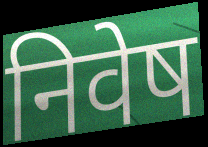
निवेष